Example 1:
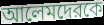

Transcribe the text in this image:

আলেমদেরকে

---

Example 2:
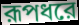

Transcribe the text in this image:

রূপধরে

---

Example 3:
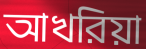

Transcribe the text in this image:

আখরিয়া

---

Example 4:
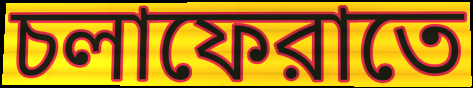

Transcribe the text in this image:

চলাফেরাতে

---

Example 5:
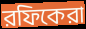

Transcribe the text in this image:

রফিকেরা